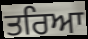
ਤਰਿਆ